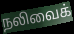
நலிவைக்